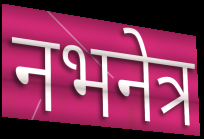
नभनेत्र